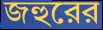
জহুরের